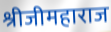
श्रीजीमहाराज